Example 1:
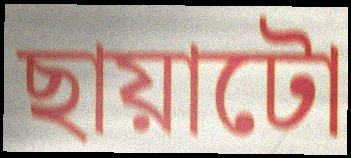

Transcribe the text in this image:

ছায়াটো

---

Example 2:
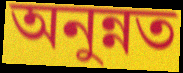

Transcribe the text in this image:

অনুন্নত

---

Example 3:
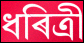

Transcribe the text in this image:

ধৰিত্ৰী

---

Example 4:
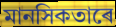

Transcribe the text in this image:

মানসিকতাৰে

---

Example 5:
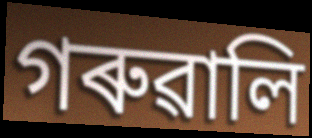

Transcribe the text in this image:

গৰুৱালি